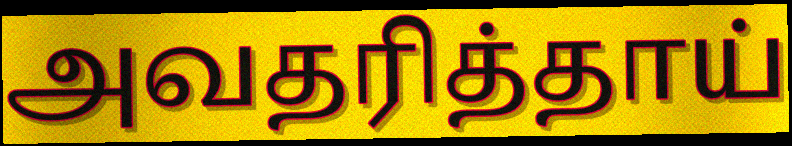
அவதரித்தாய்